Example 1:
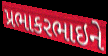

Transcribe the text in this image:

પ્રભાકરભાઇને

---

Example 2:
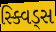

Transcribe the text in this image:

સ્ક્વિડ્સ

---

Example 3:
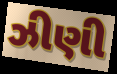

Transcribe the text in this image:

ઝીણી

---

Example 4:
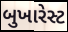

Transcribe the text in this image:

બુખારેસ્ટ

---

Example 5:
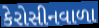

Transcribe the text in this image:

કેરોસીનવાળા